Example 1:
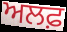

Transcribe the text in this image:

ਅਲਫ਼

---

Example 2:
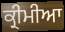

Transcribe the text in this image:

ਕ੍ਰੀਮੀਆ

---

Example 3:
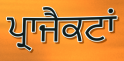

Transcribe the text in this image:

ਪ੍ਰਾਜੈਕਟਾਂ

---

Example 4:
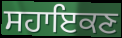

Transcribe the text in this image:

ਸਹਾਇਕਣ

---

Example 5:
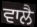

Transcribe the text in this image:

ਵਾਲੈ